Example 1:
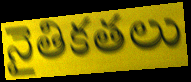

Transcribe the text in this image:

నైతికతలు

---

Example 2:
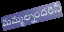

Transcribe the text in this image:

మమ్మల్నందరినీ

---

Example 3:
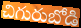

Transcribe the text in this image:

చిగురుబోడి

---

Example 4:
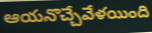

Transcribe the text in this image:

ఆయనొచ్చేవేళయింది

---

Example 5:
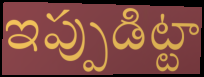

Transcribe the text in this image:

ఇప్పుడిట్టా